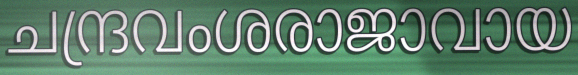
ചന്ദ്രവംശരാജാവായ